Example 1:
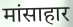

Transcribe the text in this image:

मांसाहार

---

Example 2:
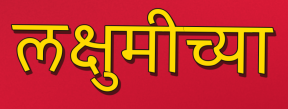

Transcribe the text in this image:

लक्षुमीच्या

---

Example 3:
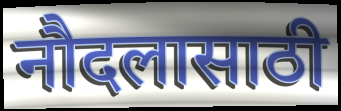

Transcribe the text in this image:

नौदलासाठी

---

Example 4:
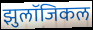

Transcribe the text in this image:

झुलॉजिकल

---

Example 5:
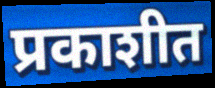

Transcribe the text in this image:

प्रकाशीत